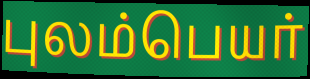
புலம்பெயர்